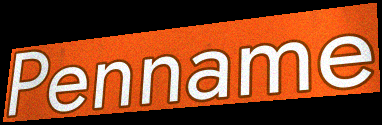
Penname